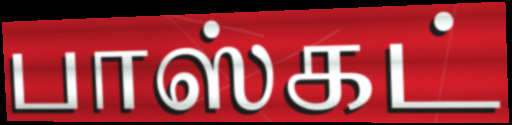
பாஸ்கட்